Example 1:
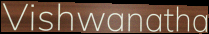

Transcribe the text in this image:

Vishwanatha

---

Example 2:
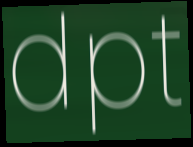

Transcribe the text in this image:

dpt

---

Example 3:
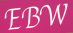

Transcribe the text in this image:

EBW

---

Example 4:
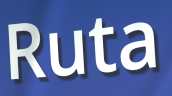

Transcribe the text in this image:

Ruta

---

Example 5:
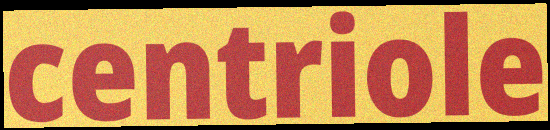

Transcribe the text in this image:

centriole